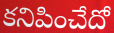
కనిపించేదో